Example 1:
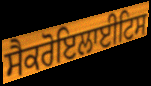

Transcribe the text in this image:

ਸੈਕਰੋਇਲਾਈਟਿਸ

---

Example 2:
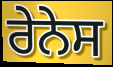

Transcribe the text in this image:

ਰੇਨੇਸ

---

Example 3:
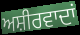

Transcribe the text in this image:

ਅਸ਼ੀਰਵਾਦਾਂ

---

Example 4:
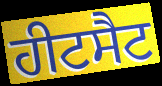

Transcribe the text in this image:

ਹੀਟਸੈਟ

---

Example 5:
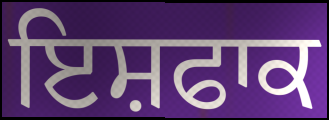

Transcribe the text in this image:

ਇਸ਼ਫਾਕ